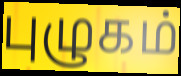
புழுகம்